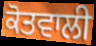
ਕੋਤਵਾਲੀ